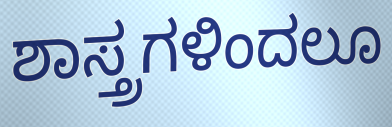
ಶಾಸ್ತ್ರಗಳಿಂದಲೂ